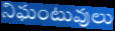
నిఘంటువులు